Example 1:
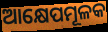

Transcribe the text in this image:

ଆକ୍ଷେପମୂଳକ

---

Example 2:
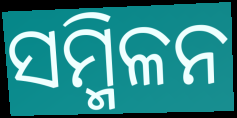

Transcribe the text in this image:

ସମ୍ମିଳନ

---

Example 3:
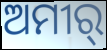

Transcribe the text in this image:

ଅମୀର୍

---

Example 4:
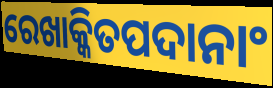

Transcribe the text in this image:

ରେଖାକ୍କିତପଦାନାଂ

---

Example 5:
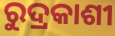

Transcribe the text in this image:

ରୁଦ୍ରକାଶୀ